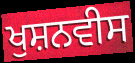
ਖੁਸ਼ਨਵੀਸ